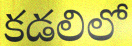
కడలిలో